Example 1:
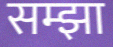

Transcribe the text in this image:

सम्झा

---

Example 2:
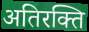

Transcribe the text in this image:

अतिरक्ति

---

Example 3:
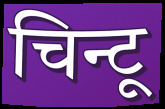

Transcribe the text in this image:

चिन्टू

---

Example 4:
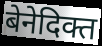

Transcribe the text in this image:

बेनेदिक्त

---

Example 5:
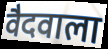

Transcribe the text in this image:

वैदवाला